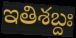
ఇతిశబ్దః